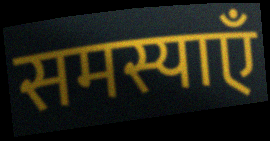
समस्याएँ